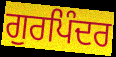
ਗੁਰਪਿੰਦਰ